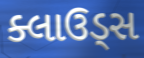
ક્લાઉડ્સ